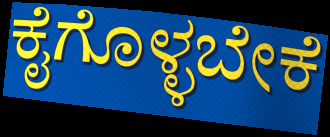
ಕೈಗೊಳ್ಳಬೇಕೆ